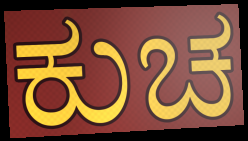
ಕುಚ